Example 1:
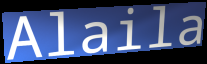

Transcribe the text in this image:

Alaila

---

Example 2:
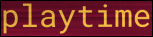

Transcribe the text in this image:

playtime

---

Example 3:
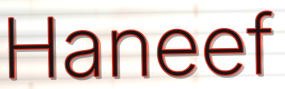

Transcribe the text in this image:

Haneef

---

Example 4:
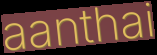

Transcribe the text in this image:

aanthai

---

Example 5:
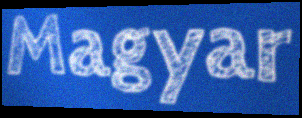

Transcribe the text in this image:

Magyar